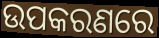
ଉପକରଣରେ